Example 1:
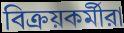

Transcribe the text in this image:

বিক্রয়কর্মীরা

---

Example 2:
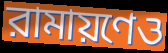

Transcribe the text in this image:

রামায়ণেও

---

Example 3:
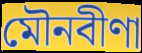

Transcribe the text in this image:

মৌনবীণা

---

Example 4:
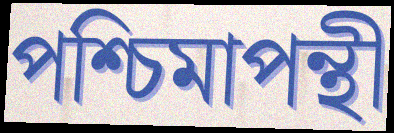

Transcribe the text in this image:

পশ্চিমাপন্থী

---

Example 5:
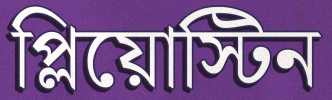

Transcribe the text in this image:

প্লিয়োস্টিন